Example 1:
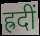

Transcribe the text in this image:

ह्रदीं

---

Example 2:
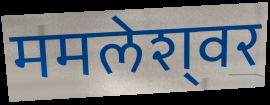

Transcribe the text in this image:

ममलेश्वर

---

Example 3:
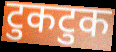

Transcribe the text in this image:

टुकटुक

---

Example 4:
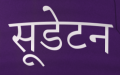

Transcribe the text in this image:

सूडेटन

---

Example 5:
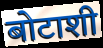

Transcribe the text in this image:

बोटाशी